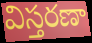
విస్తరణా